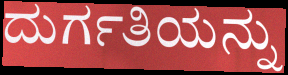
ದುರ್ಗತಿಯನ್ನು